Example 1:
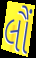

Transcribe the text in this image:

લૌં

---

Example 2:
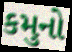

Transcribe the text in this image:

કમુનો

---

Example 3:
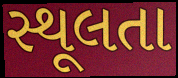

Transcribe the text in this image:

સ્થૂલતા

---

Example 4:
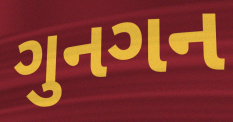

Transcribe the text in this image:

ગુનગન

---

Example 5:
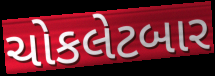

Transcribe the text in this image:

ચોકલેટબાર